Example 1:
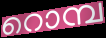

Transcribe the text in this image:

റൊമ്പ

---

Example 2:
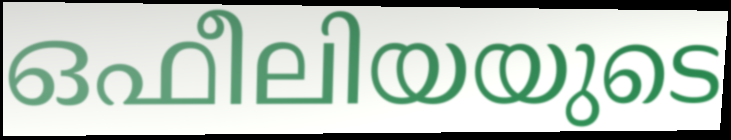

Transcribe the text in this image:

ഒഫീലിയയുടെ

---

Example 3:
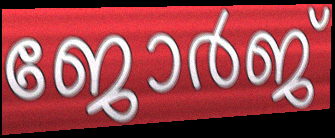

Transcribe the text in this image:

ജോർജ്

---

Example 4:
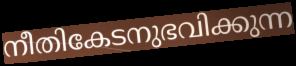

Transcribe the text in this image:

നീതികേടനുഭവിക്കുന്ന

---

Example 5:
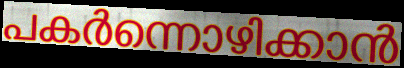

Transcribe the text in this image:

പകർന്നൊഴിക്കാൻ